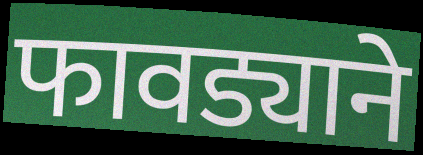
फावड्याने